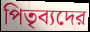
পিতৃব্যদের